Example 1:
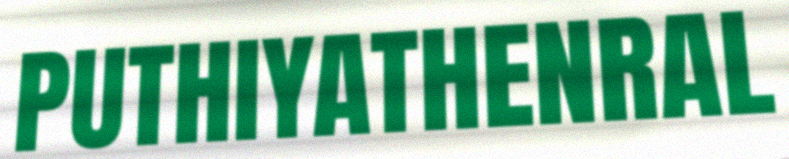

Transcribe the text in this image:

PUTHIYATHENRAL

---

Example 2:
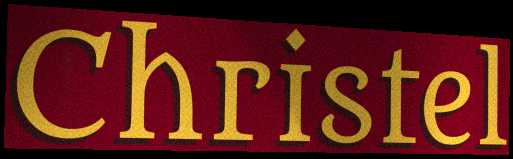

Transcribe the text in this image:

Christel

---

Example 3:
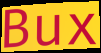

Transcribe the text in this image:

Bux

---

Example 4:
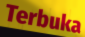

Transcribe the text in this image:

Terbuka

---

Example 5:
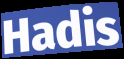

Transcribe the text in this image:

Hadis